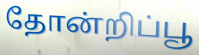
தோன்றிப்பூ